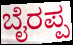
ಬೈರಪ್ಪ